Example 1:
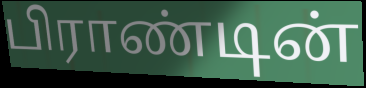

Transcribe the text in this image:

பிராண்டின்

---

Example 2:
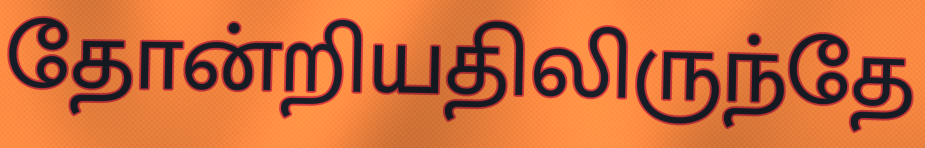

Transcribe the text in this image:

தோன்றியதிலிருந்தே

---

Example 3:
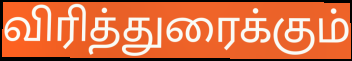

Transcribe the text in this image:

விரித்துரைக்கும்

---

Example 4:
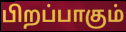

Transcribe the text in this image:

பிறப்பாகும்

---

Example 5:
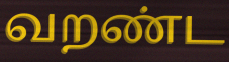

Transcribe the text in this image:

வறண்ட